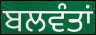
ਬਲਵੰਤਾਂ